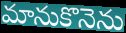
మానుకొనెను